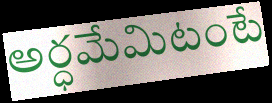
అర్ధమేమిటంటే